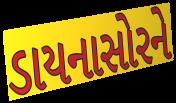
ડાયનાસોરને